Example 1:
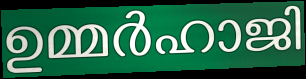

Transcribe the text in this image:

ഉമ്മർഹാജി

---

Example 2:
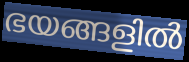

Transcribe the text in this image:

ഭയങ്ങളിൽ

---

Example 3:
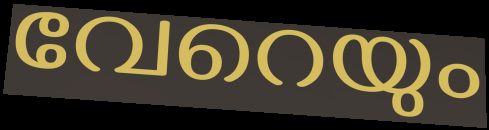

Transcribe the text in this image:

വേറെയും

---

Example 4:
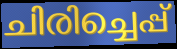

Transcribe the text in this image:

ചിരിച്ചെപ്പ്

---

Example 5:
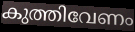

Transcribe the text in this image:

കുത്തിവേണം